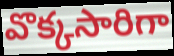
వొక్కసారిగా